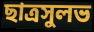
ছাত্রসুলভ